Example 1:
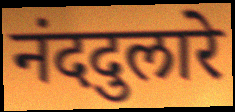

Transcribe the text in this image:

नंददुलारे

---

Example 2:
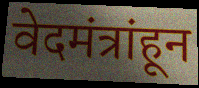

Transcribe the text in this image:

वेदमंत्रांहून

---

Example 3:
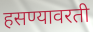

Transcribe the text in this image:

हसण्यावरती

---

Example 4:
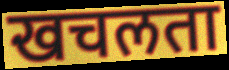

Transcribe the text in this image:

खचलता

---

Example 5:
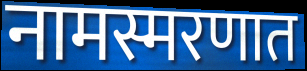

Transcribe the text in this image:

नामस्मरणात